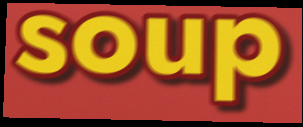
soup